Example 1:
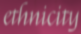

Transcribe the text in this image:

ethnicity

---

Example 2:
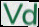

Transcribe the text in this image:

Vd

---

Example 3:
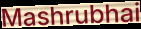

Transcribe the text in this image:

Mashrubhai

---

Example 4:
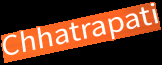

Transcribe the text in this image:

Chhatrapati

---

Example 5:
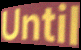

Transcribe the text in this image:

Until